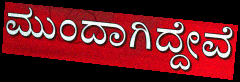
ಮುಂದಾಗಿದ್ದೇವೆ